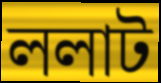
ললাট